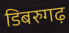
डिबरुगढ़